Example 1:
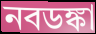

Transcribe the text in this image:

নবডঙ্কা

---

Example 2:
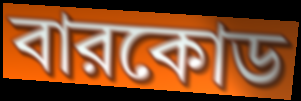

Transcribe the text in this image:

বারকোড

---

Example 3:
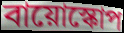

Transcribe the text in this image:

বায়োস্কোপ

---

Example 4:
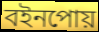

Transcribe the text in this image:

বইনপোয়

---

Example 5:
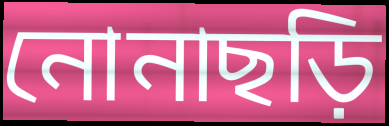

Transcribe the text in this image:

নোনাছড়ি